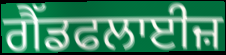
ਗੈੱਡਫਲਾਈਜ਼